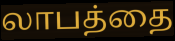
லாபத்தை